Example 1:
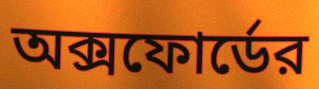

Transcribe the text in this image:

অক্সফোর্ডের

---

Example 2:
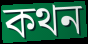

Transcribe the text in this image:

কথন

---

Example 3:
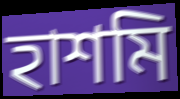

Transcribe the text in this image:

হাশমি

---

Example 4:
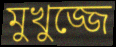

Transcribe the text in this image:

মুখুজ্জে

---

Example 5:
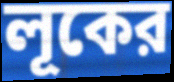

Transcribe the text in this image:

লূকের